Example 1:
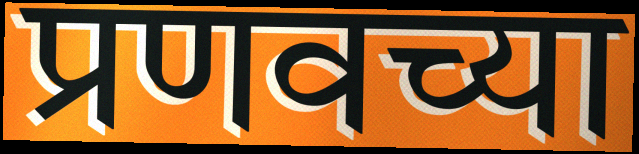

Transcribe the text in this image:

प्रणवच्या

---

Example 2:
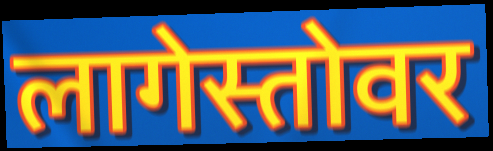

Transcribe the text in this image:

लागेस्तोवर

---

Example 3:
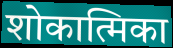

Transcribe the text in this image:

शोकात्मिका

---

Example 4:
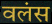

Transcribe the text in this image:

वलंस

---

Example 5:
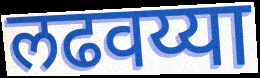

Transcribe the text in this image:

लढवय्या